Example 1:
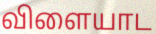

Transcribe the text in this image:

விளையாட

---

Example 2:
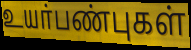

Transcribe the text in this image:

உயர்பண்புகள்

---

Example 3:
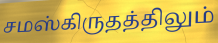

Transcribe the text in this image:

சமஸ்கிருதத்திலும்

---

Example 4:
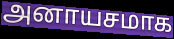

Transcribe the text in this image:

அனாயசமாக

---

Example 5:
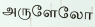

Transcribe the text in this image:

அருளேலோ